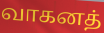
வாகனத்